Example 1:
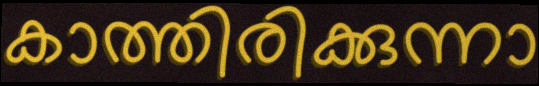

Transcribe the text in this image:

കാത്തിരിക്കുന്നാ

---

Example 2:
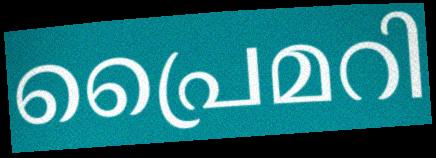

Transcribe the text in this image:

പ്രൈമറി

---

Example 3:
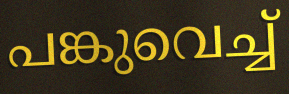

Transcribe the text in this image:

പങ്കുവെച്ച്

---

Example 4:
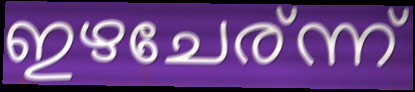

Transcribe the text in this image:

ഇഴചേര്ന്ന്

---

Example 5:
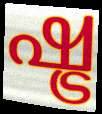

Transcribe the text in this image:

ഷ്ട്ര